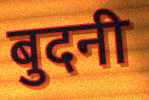
बुदनी